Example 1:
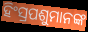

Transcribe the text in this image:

ହିଂସ୍ରପଶୁମାନଙ୍କ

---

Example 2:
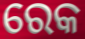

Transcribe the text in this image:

ରେକ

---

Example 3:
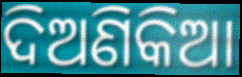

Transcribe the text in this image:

ଦିଅଣିକିଆ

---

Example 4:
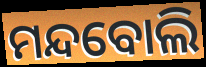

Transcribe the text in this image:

ମନ୍ଦବୋଲି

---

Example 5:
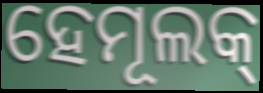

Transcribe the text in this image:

ହେମୂଲକ୍